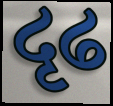
દૃઢ